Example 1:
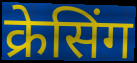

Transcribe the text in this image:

क्रेसिंग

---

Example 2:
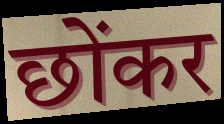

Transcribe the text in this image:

छोंकर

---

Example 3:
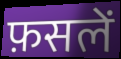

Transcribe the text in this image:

फ़सलें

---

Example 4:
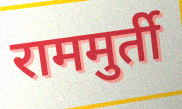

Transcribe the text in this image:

राममुर्ती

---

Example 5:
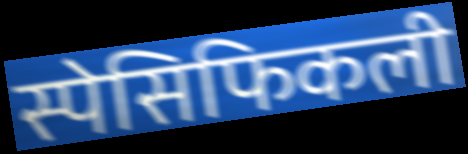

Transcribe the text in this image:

स्पेसिफिकली